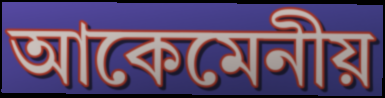
আকেমেনীয়